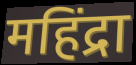
महिंद्रा